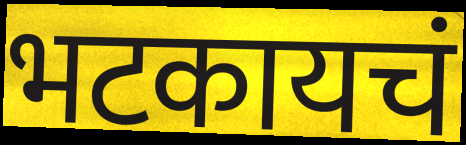
भटकायचं